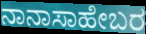
ನಾನಾಸಾಹೇಬರ